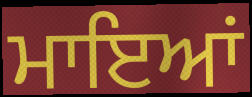
ਮਾਇਆਂ